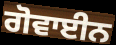
ਗੋਵਾਈਨ